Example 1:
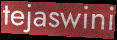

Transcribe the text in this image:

tejaswini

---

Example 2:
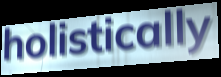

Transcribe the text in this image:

holistically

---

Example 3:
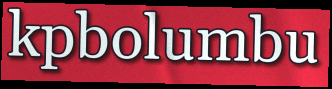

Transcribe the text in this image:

kpbolumbu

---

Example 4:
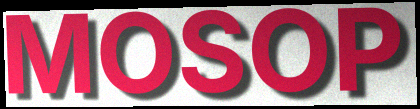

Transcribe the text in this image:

MOSOP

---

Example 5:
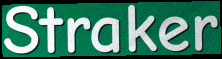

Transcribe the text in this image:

Straker